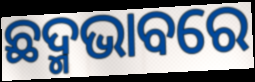
ଛଦ୍ମଭାବରେ